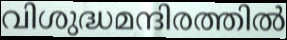
വിശുദ്ധമന്ദിരത്തിൽ